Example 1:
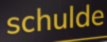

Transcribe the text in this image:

schulde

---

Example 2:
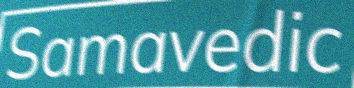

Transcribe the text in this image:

Samavedic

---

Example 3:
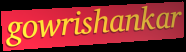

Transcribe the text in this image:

gowrishankar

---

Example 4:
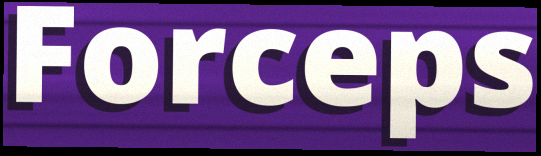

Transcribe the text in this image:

Forceps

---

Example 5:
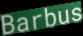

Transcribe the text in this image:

Barbus